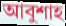
আবুশাহ